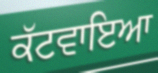
ਕੱਟਵਾਇਆ